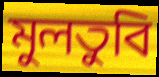
মুলতুবি